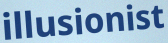
illusionist